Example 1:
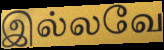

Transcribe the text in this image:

இல்லவே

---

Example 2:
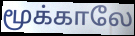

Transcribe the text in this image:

மூக்காலே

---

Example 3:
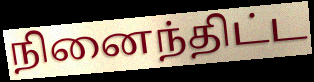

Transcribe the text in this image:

நினைந்திட்ட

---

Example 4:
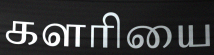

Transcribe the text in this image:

களரியை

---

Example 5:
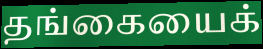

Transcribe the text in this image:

தங்கையைக்